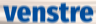
venstre